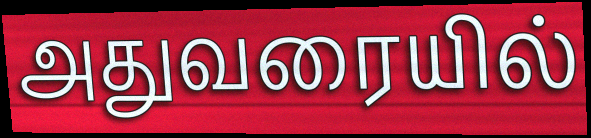
அதுவரையில்